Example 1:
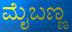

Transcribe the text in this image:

ಮೈಬಣ್ಣ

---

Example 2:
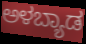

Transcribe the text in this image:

ಅಳಬ್ಯಾಡ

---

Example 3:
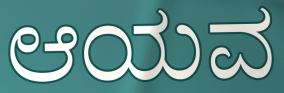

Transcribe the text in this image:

ಆಯವ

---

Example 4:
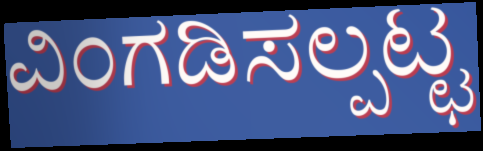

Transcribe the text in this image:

ವಿಂಗಡಿಸಲ್ಪಟ್ಟ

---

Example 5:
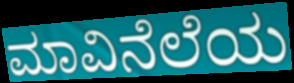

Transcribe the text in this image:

ಮಾವಿನೆಲೆಯ